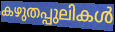
കഴുതപ്പുലികൾ